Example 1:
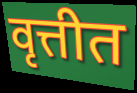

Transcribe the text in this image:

वृत्तीत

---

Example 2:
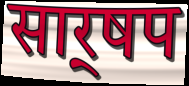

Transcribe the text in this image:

सार्षप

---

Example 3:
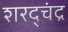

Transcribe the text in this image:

शरद्चंद्र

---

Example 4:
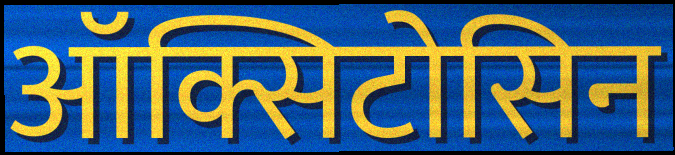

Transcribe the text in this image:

ऑक्सिटोसिन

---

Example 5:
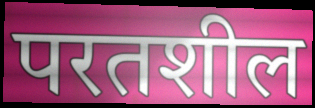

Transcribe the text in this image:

परतशील